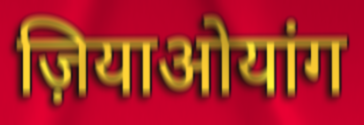
ज़ियाओयांग